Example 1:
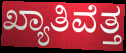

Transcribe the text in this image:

ಖ್ಯಾತಿವೆತ್ತ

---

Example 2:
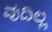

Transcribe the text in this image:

ವುದಿಲ್ಲ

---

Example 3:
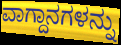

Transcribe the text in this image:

ವಾಗ್ದಾನಗಳನ್ನು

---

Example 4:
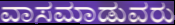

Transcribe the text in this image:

ವಾಸಮಾಡುವರು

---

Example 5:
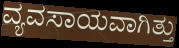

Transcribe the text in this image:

ವ್ಯವಸಾಯವಾಗಿತ್ತು